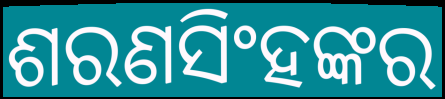
ଶରଣସିଂହଙ୍କର